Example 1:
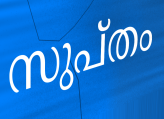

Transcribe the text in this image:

സുപ്തം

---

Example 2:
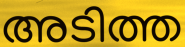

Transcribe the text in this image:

അടിത്ത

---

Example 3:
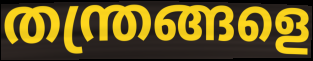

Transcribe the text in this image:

തന്ത്രങ്ങളെ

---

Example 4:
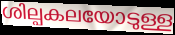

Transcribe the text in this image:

ശില്പകലയോടുള്ള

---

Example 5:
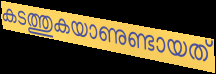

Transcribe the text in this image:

കടത്തുകയാണുണ്ടായത്